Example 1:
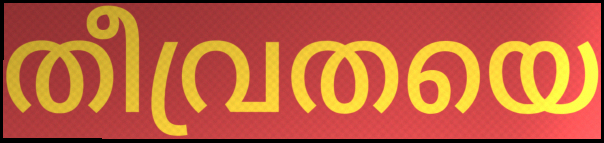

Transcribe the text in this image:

തീവ്രതയെ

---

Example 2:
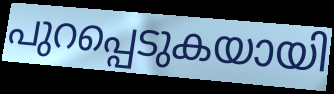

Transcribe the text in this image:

പുറപ്പെടുകയായി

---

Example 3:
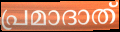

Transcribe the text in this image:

പ്രമാദാത്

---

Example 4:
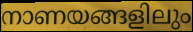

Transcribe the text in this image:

നാണയങ്ങളിലും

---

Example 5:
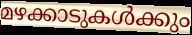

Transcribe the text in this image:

മഴക്കാടുകൾക്കും